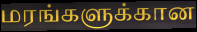
மரங்களுக்கான